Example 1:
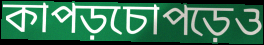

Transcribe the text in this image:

কাপড়চোপড়েও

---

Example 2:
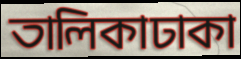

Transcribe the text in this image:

তালিকাঢাকা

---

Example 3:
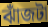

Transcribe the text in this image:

ঝাঁজটা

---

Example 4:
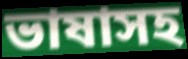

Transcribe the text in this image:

ভাষাসহ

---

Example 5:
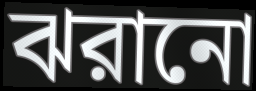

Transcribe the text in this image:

ঝরানো